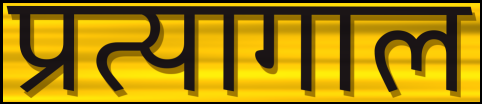
प्रत्यागाल